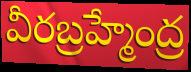
వీరబ్రహ్మేంద్ర